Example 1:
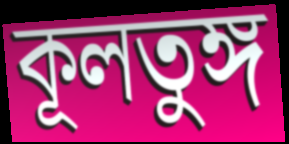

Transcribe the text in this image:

কূলতুঙ্গ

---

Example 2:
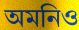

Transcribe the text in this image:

অমনিও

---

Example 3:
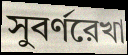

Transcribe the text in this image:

সুবর্ণরেখা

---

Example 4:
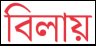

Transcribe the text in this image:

বিলায়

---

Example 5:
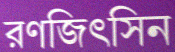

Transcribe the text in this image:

রণজিৎসিন